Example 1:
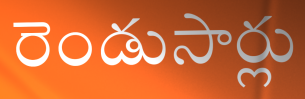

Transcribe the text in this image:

రెండుసార్లు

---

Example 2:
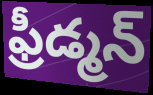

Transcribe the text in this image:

ఫ్రీడ్మన్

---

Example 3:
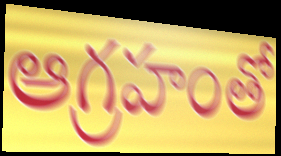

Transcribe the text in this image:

ఆగ్రహంతో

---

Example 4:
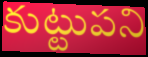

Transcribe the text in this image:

కుట్టుపని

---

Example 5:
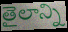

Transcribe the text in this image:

తైలాన్ని